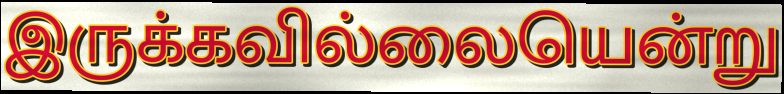
இருக்கவில்லையென்று